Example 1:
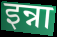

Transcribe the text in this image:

इन्ना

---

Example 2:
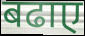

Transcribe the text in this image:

बढाए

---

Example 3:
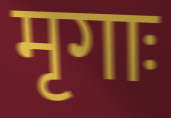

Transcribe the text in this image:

मृगाः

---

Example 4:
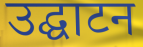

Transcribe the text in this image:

उद्घाटन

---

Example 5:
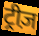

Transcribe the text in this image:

ट्रीज़